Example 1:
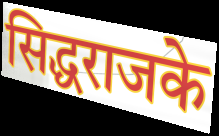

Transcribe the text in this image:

सिद्धराजके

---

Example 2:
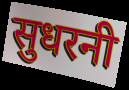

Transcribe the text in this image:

सुधरनी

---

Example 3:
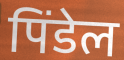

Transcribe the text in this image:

पिंडेल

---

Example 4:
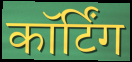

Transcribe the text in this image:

कॉर्टिंग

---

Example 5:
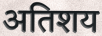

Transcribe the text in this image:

अतिशय